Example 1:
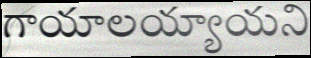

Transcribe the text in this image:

గాయాలయ్యాయని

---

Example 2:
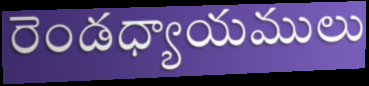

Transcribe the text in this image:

రెండధ్యాయములు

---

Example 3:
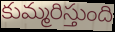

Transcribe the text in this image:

కుమ్మరిస్తుంది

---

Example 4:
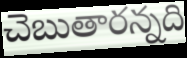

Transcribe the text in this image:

చెబుతారన్నది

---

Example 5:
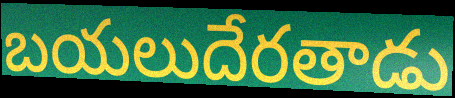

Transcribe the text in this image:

బయలుదేరతాడు